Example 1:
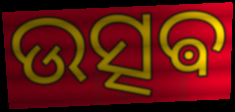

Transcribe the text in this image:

ଉତ୍ସଵ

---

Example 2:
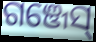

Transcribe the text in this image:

ଗଞ୍ଜେସ୍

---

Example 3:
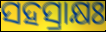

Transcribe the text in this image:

ସହସ୍ରାକ୍ଷଃ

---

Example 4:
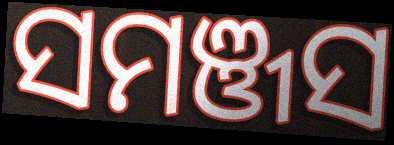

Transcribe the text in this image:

ସମଞ୍ଜସ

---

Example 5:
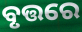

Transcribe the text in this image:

ବୃତ୍ତରେ